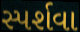
સ્પર્શવા